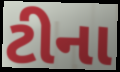
ટીના